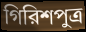
গিরিশপুত্র